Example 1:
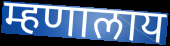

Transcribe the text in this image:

म्हणालाय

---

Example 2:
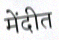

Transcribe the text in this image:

मेंदीत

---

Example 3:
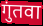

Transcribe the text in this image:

गुंतवा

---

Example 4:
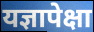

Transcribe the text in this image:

यज्ञापेक्षा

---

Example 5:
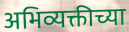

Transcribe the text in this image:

अभिव्यक्तीच्या